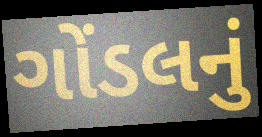
ગોંડલનું